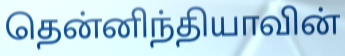
தென்னிந்தியாவின்